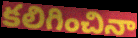
కలిగించినా